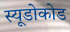
स्यूडोकोड